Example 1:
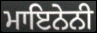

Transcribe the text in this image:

ਮਾਇਨੇਨੀ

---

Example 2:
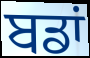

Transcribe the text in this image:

ਬਡਾਂ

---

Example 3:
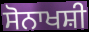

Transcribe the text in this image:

ਸੋਨਾਖਸ਼ੀ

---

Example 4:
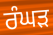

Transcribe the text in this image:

ਰੰਘੜ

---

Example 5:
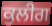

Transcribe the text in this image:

ਕੁਲੀਗ